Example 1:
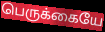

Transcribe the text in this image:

பெருக்கையே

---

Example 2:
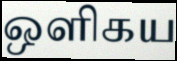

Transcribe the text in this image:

ஒளிகய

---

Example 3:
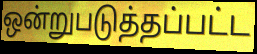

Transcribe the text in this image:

ஒன்றுபடுத்தப்பட்ட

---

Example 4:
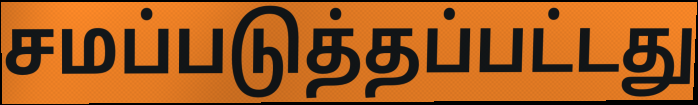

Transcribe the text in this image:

சமப்படுத்தப்பட்டது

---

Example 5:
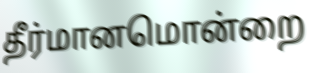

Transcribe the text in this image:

தீர்மானமொன்றை